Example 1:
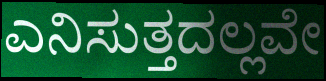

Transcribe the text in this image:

ಎನಿಸುತ್ತದಲ್ಲವೇ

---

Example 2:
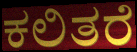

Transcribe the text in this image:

ಕಲಿತರೆ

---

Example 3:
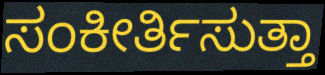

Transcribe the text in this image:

ಸಂಕೀರ್ತಿಸುತ್ತಾ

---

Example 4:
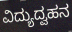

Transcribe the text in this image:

ವಿದ್ಯುದ್ವಹನ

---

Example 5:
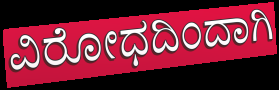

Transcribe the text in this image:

ವಿರೋಧದಿಂದಾಗಿ